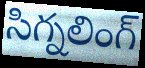
సిగ్నలింగ్